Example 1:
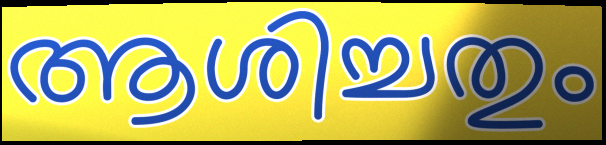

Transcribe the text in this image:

ആശിച്ചതും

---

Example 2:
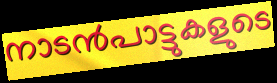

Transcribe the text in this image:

നാടൻപാട്ടുകളുടെ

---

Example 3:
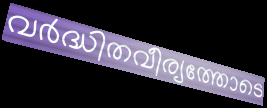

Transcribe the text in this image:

വർദ്ധിതവീര്യത്തോടെ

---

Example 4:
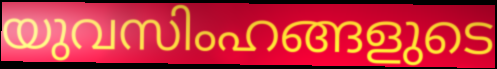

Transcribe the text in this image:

യുവസിംഹങ്ങളുടെ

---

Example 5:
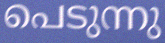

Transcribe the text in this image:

പെടുന്നു